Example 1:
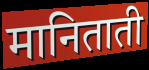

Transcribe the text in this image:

मानिताती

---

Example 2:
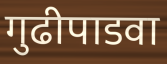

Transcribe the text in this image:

गुढीपाडवा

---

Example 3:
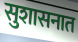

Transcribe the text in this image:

सुशासनात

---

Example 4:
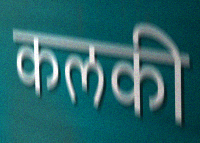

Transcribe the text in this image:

कलकी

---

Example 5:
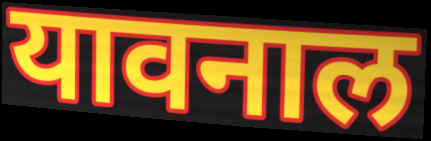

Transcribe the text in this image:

यावनाल